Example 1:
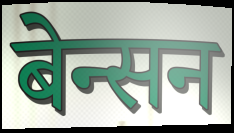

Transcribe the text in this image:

बेन्सन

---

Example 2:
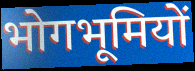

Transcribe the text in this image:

भोगभूमियों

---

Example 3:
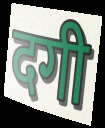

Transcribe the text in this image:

दगी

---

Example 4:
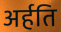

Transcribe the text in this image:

अर्हति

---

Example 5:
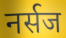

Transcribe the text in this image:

नर्सज